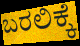
ಬರಲಿಕ್ಕೆ